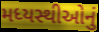
મધ્યસ્થીઓનું